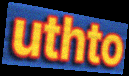
uthto